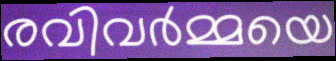
രവിവർമ്മയെ